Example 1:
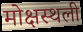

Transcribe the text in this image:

मोक्षस्थली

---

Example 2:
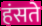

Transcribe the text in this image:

हंसते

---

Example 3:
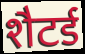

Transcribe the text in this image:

शैटर्ड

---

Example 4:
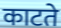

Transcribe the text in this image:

काटते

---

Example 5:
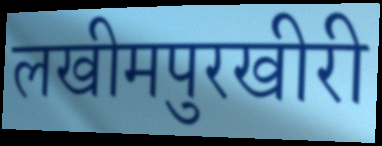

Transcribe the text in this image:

लखीमपुरखीरी